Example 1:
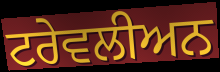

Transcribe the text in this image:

ਟਰੇਵਲੀਅਨ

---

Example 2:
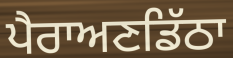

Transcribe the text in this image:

ਪੈਰਾਅਣਡਿੱਠਾ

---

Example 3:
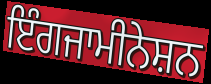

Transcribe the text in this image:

ਇੰਗਜਾਮੀਨੇਸ਼ਨ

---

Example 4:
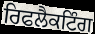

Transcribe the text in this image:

ਰਿਫਲੈਕਟਿੰਗ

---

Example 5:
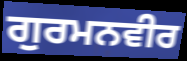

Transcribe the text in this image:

ਗੁਰਮਨਵੀਰ